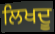
ਲਿਖਦੂ